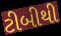
ટીબીથી